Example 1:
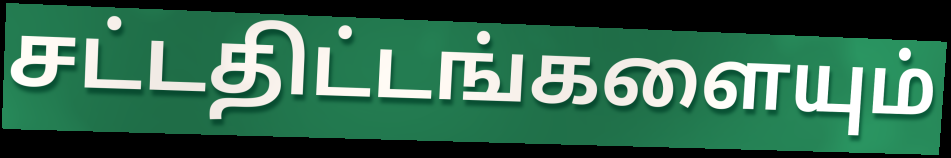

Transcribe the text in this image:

சட்டதிட்டங்களையும்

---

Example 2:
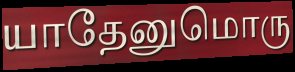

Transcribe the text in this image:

யாதேனுமொரு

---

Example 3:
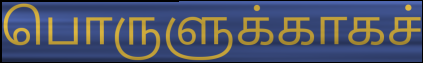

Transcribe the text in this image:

பொருளுக்காகச்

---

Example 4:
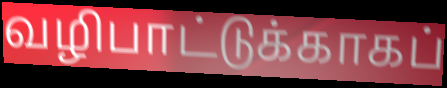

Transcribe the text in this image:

வழிபாட்டுக்காகப்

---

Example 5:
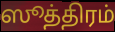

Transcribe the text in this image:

ஸூத்திரம்